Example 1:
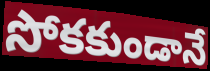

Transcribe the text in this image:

సోకకుండానే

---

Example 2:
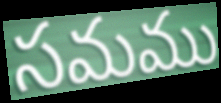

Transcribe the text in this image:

సమము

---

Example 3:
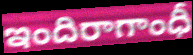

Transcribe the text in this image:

ఇందిరాగాంధీ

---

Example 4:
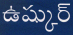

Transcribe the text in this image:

ఉష్కుర్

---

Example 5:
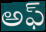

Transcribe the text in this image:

అఫ్